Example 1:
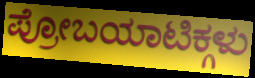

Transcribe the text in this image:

ಪ್ರೋಬಯಾಟಿಕ್ಗಳು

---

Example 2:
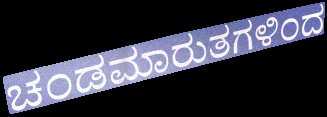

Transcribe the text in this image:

ಚಂಡಮಾರುತಗಳಿಂದ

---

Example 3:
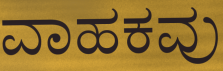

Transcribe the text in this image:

ವಾಹಕವು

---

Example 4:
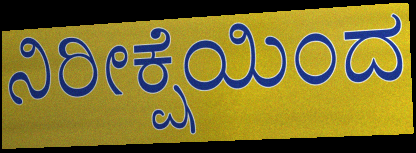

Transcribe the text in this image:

ನಿರೀಕ್ಷೆಯಿಂದ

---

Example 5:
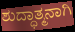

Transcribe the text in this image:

ಶುದ್ಧಾತ್ಮನಾಗಿ